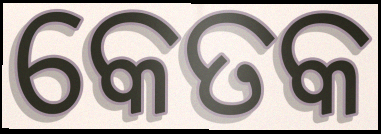
କେତକ